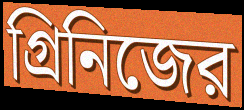
গ্রিনিজের